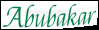
Abubakar